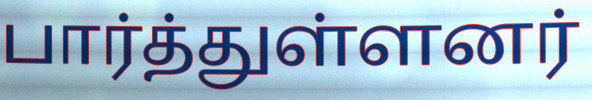
பார்த்துள்ளனர்